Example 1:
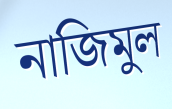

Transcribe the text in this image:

নাজিমুল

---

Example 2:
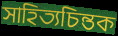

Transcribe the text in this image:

সাহিত্যচিন্তক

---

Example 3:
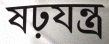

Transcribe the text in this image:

ষঢ়যন্ত্র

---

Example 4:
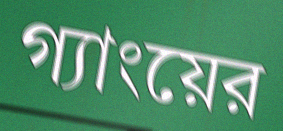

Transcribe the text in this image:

গ্যাংয়ের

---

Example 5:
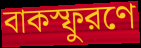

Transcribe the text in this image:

বাকস্ফুরণে